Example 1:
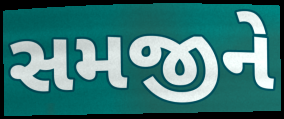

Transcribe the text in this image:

સમજીને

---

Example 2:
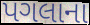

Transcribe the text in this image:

પગલાના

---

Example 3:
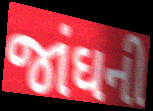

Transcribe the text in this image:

જાંઘની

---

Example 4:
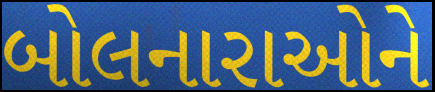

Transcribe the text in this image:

બોલનારાઓને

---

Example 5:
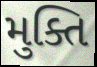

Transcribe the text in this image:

મુક્તિ